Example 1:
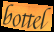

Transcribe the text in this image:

bottel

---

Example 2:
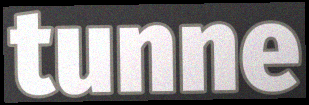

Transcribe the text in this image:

tunne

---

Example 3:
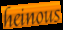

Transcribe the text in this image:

heinous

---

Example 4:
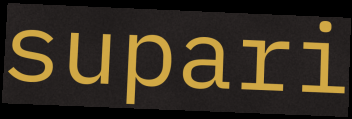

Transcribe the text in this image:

supari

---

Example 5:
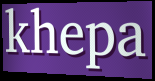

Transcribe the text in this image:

khepa